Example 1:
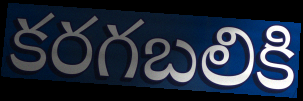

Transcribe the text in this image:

కరగబలికి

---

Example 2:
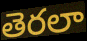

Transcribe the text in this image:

తెరలా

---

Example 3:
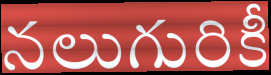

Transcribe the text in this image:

నలుగురికీ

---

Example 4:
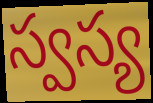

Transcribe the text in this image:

స్వస్య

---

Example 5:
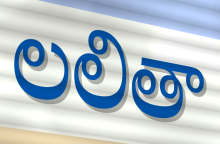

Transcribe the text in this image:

లలితా